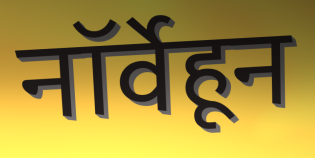
नॉर्वेहून